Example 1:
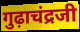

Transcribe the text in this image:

गुढ़ाचंद्रजी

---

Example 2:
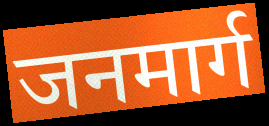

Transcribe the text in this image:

जनमार्ग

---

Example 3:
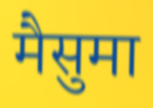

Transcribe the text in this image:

मैसुमा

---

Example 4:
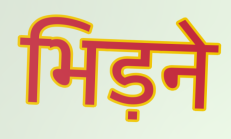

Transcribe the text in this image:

भिड़ने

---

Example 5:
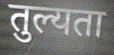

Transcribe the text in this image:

तुल्यता